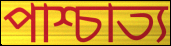
পাশ্চাত্য